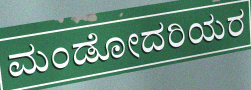
ಮಂಡೋದರಿಯರ